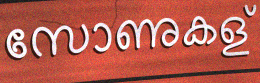
സോണുകള്